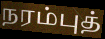
நரம்புத்